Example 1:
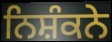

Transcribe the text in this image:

ਨਿਸ਼ੰਕਨੇ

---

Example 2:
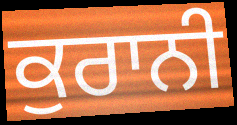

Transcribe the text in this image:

ਕੁਰਾਨੀ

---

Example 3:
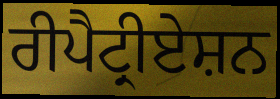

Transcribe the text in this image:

ਰੀਪੈਟ੍ਰੀਏਸ਼ਨ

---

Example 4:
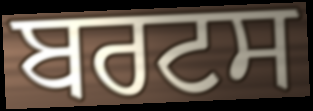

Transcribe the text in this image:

ਬਰਟਸ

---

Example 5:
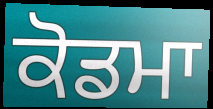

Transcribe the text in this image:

ਕੋਡਮਾ